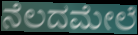
ನೆಲದಮೇಲೆ